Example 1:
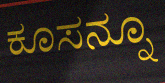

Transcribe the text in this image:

ಕೂಸನ್ನೂ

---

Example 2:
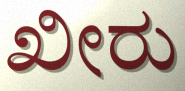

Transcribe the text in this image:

ಖೀರು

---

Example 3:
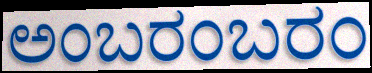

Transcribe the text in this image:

ಅಂಬರಂಬರಂ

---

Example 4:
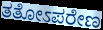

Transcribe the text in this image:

ತತೋಽಪರೇಣ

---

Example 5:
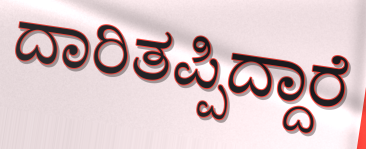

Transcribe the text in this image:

ದಾರಿತಪ್ಪಿದ್ದಾರೆ